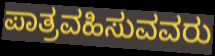
ಪಾತ್ರವಹಿಸುವವರು